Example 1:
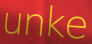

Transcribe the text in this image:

unke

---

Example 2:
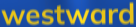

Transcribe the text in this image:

westward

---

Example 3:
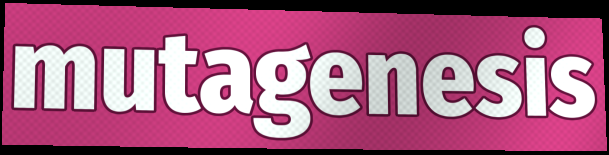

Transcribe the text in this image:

mutagenesis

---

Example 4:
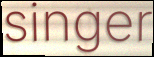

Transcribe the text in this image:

singer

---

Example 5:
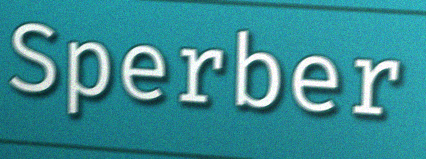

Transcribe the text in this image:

Sperber